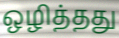
ஒழித்தது